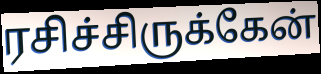
ரசிச்சிருக்கேன்